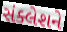
સંક્લેશને